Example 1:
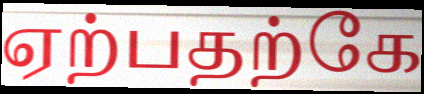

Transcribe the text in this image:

ஏற்பதற்கே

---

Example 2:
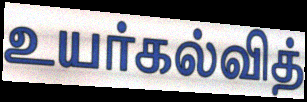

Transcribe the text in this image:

உயர்கல்வித்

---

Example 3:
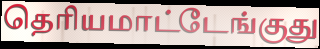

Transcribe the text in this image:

தெரியமாட்டேங்குது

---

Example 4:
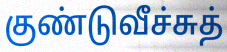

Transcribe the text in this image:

குண்டுவீச்சுத்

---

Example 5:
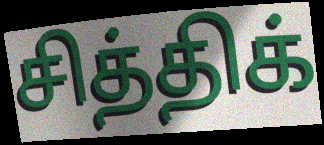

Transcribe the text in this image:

சித்திக்